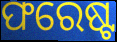
ଫରେଷ୍ଟ